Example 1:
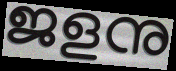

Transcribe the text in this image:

ജളനു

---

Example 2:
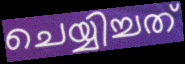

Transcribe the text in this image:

ചെയ്യിച്ചത്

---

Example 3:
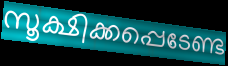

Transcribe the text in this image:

സൂക്ഷിക്കപ്പെടേണ്ട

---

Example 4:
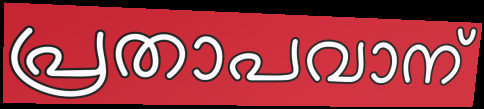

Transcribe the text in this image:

പ്രതാപവാന്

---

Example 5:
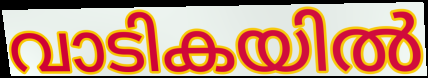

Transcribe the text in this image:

വാടികയിൽ